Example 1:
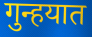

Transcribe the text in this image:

गुन्हयात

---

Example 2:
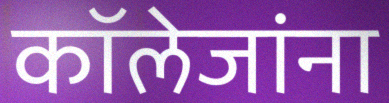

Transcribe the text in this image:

कॉलेजांना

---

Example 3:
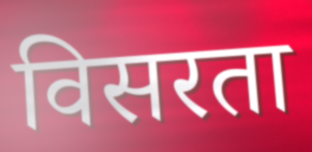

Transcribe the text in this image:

विसरता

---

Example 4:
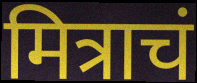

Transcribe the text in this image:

मित्राचं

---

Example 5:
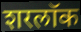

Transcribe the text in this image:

शरलॉक